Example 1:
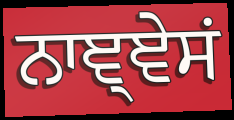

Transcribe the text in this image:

ਨਾਞ੍ਞੇਸਂ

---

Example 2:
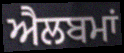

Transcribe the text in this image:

ਐਲਬਮਾਂ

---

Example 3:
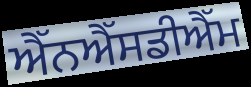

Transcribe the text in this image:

ਐੱਨਐੱਸਡੀਐੱਮ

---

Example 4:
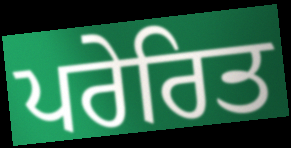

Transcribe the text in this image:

ਪਰੇਰਿਤ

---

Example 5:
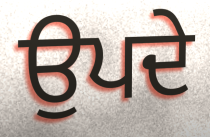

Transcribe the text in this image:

ਉਪਦੇ